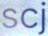
scj